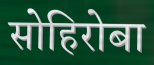
सोहिरोबा